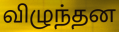
விழுந்தன